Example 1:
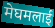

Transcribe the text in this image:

मेघमलाई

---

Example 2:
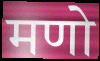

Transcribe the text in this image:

मणो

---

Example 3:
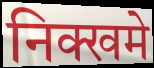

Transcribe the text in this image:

निक्खमे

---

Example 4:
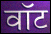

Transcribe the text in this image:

वॉट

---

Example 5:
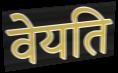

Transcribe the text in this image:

वेयति